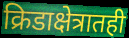
क्रिडाक्षेत्रातही